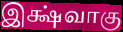
இக்ஷ்வாகு